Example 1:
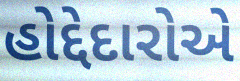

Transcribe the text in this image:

હોદ્દેદારોએ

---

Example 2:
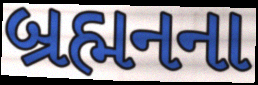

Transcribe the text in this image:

બ્રહ્મનના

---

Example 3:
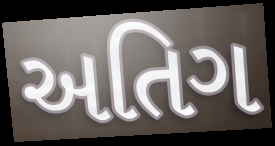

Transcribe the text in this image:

અતિગ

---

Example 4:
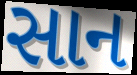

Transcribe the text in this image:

સાન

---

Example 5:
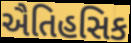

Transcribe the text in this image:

ઐતિહસિક